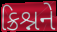
ક્રિશ્નને